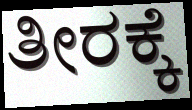
ತೀರಕ್ಕೆ